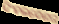
ସିଂହଳଦେଶର